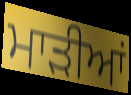
ਮਾੜੀਆਂ